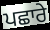
ਪਛਾਰੇ